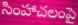
సింహాచలంపై